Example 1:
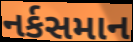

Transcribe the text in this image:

નર્કસમાન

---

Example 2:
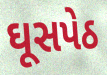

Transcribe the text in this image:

ઘૂસપેઠ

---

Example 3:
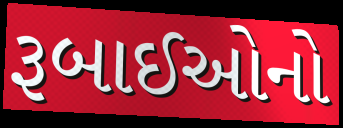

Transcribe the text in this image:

રૂબાઈઓનો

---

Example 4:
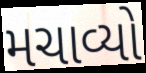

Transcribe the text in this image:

મચાવ્યો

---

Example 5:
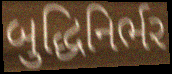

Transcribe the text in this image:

બુદ્ધિનિર્ભર